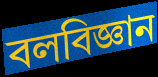
বলবিজ্ঞান